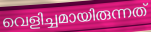
വെളിച്ചമായിരുന്നത്